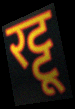
रट्टू